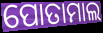
ପୋତାମାଲ